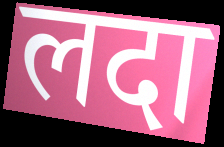
लदा